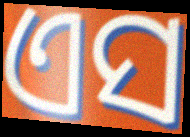
ଏସ